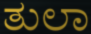
ತುಲಾ